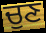
ਚੁਣ